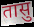
तासु